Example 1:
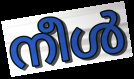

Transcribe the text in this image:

നീൾ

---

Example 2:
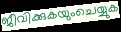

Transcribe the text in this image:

ജീവിക്കുകയുംചെയ്യുക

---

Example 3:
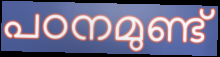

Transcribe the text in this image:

പഠനമുണ്ട്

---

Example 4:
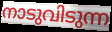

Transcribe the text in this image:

നാടുവിടുന്ന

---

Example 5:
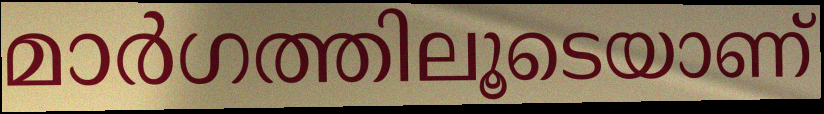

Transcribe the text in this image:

മാർഗത്തിലൂടെയാണ്